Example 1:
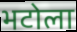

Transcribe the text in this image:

भटोला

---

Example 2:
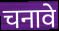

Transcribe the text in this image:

चनावे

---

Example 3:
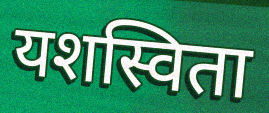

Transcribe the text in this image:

यशस्विता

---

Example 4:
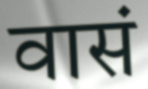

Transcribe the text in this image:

वासं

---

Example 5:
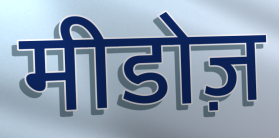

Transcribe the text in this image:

मीडोज़